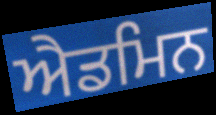
ਐਡਮਿਨ